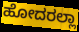
ಹೋದರಲ್ಲಾ